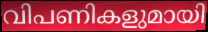
വിപണികളുമായി